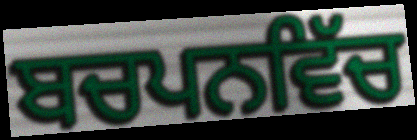
ਬਚਪਨਵਿੱਚ